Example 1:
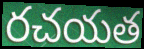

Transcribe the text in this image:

రచయత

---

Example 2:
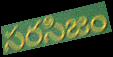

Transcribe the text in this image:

సరసిజం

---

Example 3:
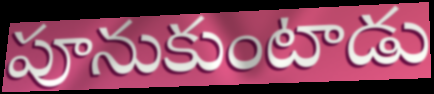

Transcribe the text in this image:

పూనుకుంటాడు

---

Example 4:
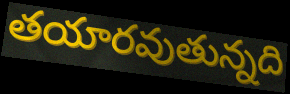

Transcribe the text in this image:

తయారవుతున్నది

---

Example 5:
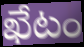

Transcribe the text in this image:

ఖేటం